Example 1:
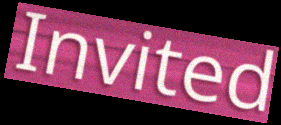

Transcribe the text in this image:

Invited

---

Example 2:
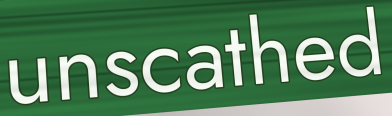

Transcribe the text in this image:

unscathed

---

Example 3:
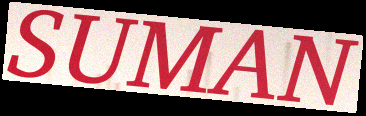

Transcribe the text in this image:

SUMAN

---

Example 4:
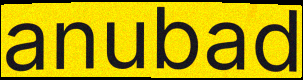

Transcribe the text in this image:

anubad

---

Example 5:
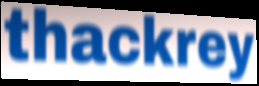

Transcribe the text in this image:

thackrey